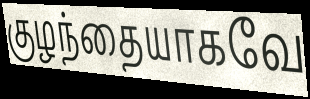
குழந்தையாகவே